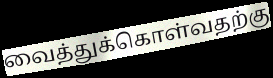
வைத்துக்கொள்வதற்கு